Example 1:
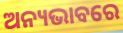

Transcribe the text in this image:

ଅନ୍ୟଭାବରେ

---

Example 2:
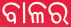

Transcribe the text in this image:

ବାଳର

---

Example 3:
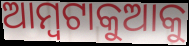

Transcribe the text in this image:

ଆମ୍ବଟାକୁଆକୁ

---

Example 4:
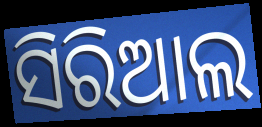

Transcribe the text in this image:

ସିରିଆଲ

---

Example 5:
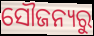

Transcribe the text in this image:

ସୌଜନ୍ୟରୁ